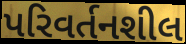
પરિવર્તનશીલ